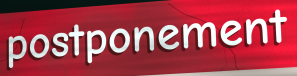
postponement